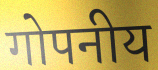
गोपनीय